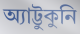
অ্যাট্টুকুনি